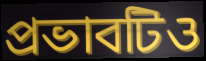
প্রভাবটিও